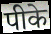
पीके